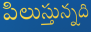
పిలుస్తున్నది